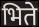
भिते